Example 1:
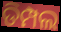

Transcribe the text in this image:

ଡିମ୍ପଲ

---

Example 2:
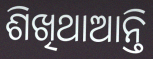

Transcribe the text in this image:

ଶିଖିଥାଆନ୍ତି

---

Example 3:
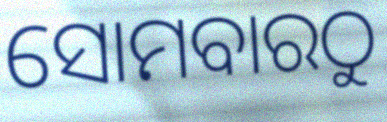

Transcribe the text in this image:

ସୋମବାରଠୁ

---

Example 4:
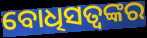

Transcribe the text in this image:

ବୋଧିସତ୍ୱଙ୍କର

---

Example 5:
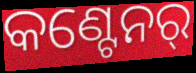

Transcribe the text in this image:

କଣ୍ଟେନର୍